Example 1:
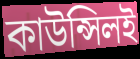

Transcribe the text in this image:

কাউন্সিলই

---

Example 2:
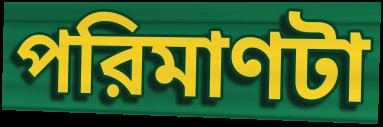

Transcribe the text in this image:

পরিমাণটা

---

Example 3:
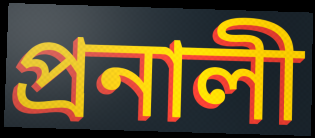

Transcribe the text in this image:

প্রনালী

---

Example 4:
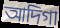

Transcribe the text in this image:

আদিগা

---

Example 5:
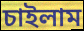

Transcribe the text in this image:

চাইলাম